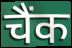
चैंक